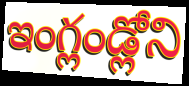
ఇంగ్లండ్లోని